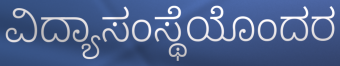
ವಿದ್ಯಾಸಂಸ್ಥೆಯೊಂದರ